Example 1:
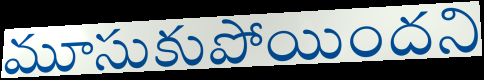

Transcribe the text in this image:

మూసుకుపోయిందని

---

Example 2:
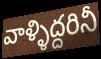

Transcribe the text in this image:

వాళ్ళిద్దరినీ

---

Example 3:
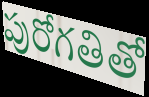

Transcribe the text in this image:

పురోగతితో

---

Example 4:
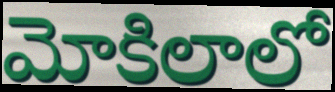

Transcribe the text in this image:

మోకిలాలో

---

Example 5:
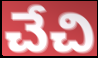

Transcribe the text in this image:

చేచి